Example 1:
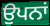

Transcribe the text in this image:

ਉਪਨਾਂ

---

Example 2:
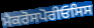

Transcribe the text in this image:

ਮੈਕਰੋਸਪੋਰੀਓਸਿਸ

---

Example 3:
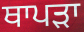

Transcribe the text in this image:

ਥਾਪੜਾ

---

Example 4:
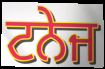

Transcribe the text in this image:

ਟਨੇਜ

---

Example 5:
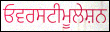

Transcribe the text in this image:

ਓਵਰਸਟੀਮੂਲੇਸ਼ਨ